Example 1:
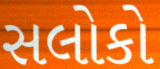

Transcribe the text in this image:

સલોકો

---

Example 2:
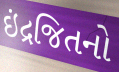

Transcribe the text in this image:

ઇંદ્રજિતનો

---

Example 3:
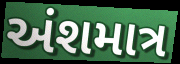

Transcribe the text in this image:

અંશમાત્ર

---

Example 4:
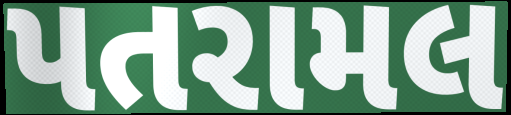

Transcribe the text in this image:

પતરામલ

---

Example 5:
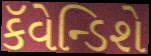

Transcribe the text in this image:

કૅવેન્ડિશે